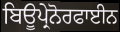
ਬਿਊਪ੍ਰੇਨੋਰਫਾਈਨ